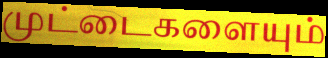
முட்டைகளையும்